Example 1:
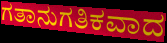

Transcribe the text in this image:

ಗತಾನುಗತಿಕವಾದ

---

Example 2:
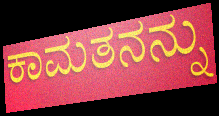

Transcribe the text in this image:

ಕಾಮತನನ್ನು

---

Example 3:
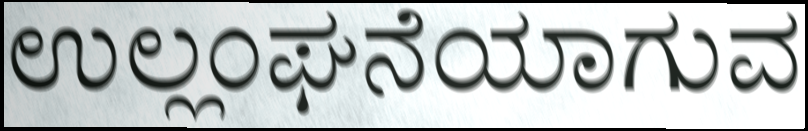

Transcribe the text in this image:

ಉಲ್ಲಂಘನೆಯಾಗುವ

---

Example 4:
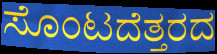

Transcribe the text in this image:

ಸೊಂಟದೆತ್ತರದ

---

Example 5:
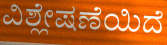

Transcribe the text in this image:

ವಿಶ್ಲೇಷಣೆಯಿದೆ